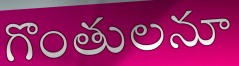
గొంతులనూ